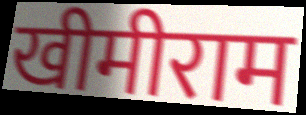
खीमीराम